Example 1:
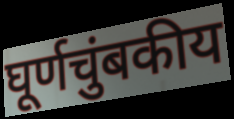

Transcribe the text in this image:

घूर्णचुंबकीय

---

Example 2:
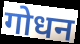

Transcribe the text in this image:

गोधन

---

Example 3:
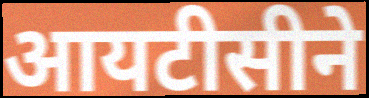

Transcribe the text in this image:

आयटीसीने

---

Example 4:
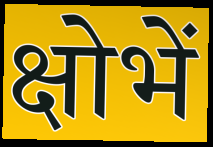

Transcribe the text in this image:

क्षोभें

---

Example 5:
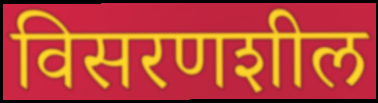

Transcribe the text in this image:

विसरणशील